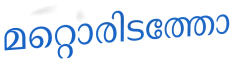
മറ്റൊരിടത്തോ